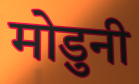
मोडुनी